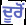
ਦੂਰੋਂ